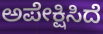
ಅಪೇಕ್ಷಿಸಿದೆ